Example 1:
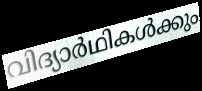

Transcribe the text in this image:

വിദ്യാർഥികൾക്കും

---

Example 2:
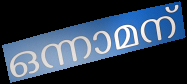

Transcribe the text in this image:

ഒന്നാമന്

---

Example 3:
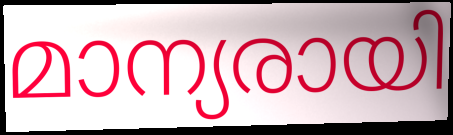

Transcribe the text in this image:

മാന്യരായി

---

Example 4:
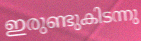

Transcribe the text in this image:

ഇരുണ്ടുകിടന്നു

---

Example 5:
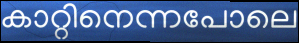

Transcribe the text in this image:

കാറ്റിനെന്നപോലെ